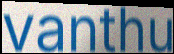
vanthu